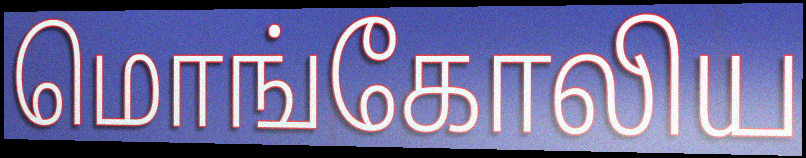
மொங்கோலிய